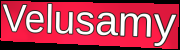
Velusamy